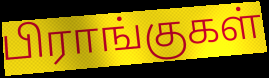
பிராங்குகள்